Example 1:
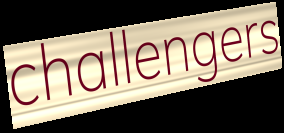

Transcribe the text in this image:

challengers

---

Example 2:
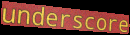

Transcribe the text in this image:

underscore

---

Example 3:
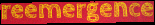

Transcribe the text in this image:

reemergence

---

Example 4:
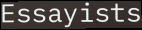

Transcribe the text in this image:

Essayists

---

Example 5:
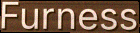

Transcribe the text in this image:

Furness